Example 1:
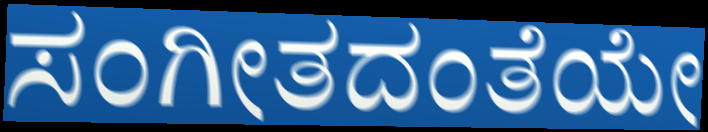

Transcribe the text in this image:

ಸಂಗೀತದಂತೆಯೇ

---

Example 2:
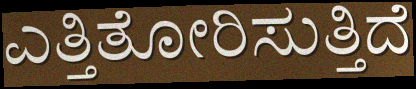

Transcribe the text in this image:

ಎತ್ತಿತೋರಿಸುತ್ತಿದೆ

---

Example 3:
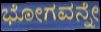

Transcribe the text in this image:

ಭೋಗವನ್ನೇ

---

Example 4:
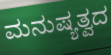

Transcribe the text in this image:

ಮನುಷ್ಯತ್ವದ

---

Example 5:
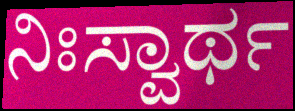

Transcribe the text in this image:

ನಿಃಸ್ವಾರ್ಥ